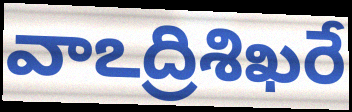
వాఽద్రిశిఖరే